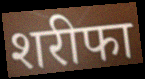
शरीफा